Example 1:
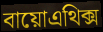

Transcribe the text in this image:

বায়োএথিক্স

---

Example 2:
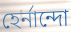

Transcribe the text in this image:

হের্নান্দো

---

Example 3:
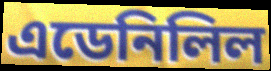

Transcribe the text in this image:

এডেনিলিল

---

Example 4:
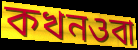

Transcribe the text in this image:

কখনওবা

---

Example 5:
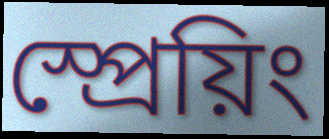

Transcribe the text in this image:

স্প্রেয়িং